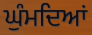
ਘੁੰਮਦਿਆਂ